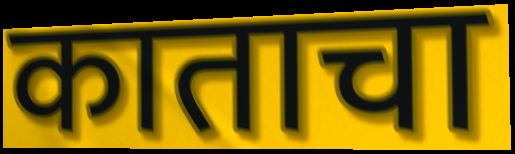
काताचा